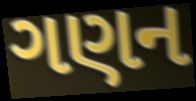
ગણન